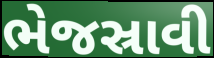
ભેજસ્રાવી